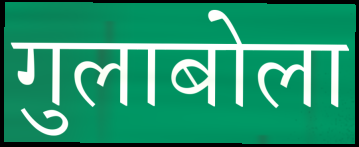
गुलाबोला